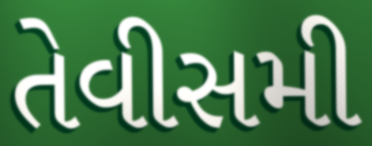
તેવીસમી